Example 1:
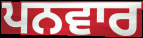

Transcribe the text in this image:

ਪਨਵਾਰ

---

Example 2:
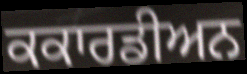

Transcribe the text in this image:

ਕਕਾਰਡੀਅਨ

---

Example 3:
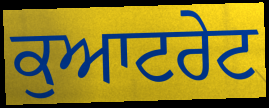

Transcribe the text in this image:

ਕੁਆਟਰੇਟ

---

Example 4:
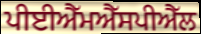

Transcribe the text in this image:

ਪੀਈਐੱਮਐੱਸਪੀਐੱਲ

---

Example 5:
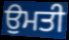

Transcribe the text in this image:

ਉਮਤੀ